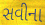
સવીના